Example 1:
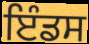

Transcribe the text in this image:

ਇੰਡਸ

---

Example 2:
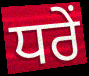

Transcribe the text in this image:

ਧਰੇਂ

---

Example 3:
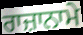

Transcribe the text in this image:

ਰਾਜ਼ਾਨਾਮੇ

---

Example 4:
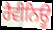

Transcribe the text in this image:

ਰੈਵੀਨਿਊ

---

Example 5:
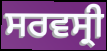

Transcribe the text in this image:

ਸਰਵਸ੍ਰੀ